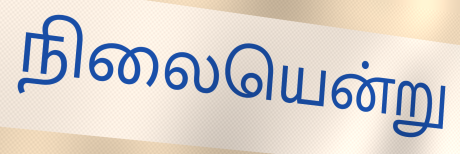
நிலையென்று